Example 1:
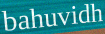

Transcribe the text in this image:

bahuvidh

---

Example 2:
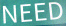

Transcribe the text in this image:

NEED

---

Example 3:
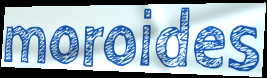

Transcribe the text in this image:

moroides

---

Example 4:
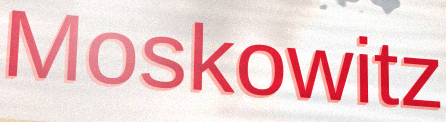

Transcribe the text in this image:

Moskowitz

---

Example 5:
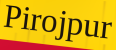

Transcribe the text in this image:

Pirojpur